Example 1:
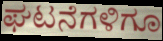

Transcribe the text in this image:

ಘಟನೆಗಳಿಗೂ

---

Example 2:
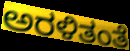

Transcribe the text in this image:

ಅರಳಿತಂತೆ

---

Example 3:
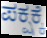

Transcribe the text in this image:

ಪಕ್ಷಕ್ಕೆ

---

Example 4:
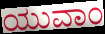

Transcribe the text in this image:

ಯುವಾಂ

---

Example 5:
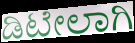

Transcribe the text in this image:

ಡಿಟೇಲಾಗಿ